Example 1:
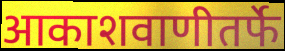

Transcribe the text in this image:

आकाशवाणीतर्फे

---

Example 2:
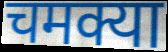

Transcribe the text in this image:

चमक्या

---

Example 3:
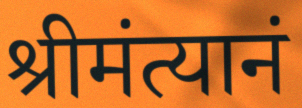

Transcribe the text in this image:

श्रीमंत्यानं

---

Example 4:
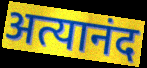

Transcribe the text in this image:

अत्यानंद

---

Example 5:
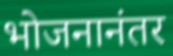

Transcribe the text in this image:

भोजनानंतर